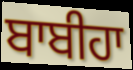
ਬਾਬੀਹਾ